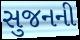
સુજનની